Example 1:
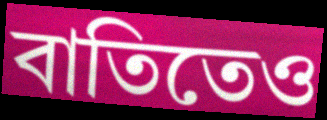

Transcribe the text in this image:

বাতিতেও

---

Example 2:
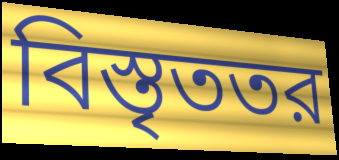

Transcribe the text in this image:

বিস্তৃততর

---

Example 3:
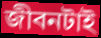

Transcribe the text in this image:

জীবনটাই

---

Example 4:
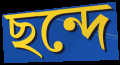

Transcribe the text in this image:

ছন্দে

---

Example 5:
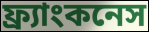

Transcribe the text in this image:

ফ্র্যাংকনেস